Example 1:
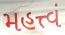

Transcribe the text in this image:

મહત્ત્વં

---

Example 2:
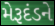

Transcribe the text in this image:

મેરૂદંડને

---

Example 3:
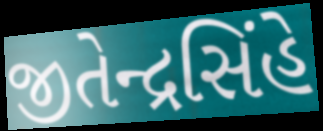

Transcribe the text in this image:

જીતેન્દ્રસિંહે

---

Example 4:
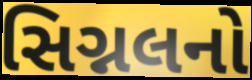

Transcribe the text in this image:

સિગ્નલનો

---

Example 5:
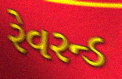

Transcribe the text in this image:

રેવરન્ડ